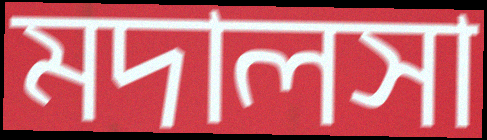
মদালসা